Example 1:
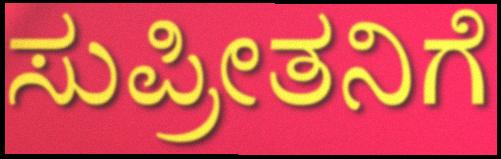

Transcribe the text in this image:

ಸುಪ್ರೀತನಿಗೆ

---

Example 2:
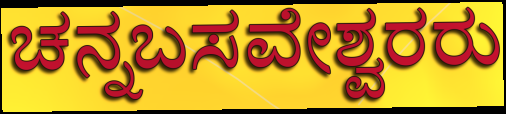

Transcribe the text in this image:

ಚನ್ನಬಸವೇಶ್ವರರು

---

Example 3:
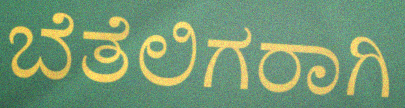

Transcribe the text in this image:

ಬೆತೆಲಿಗರಾಗಿ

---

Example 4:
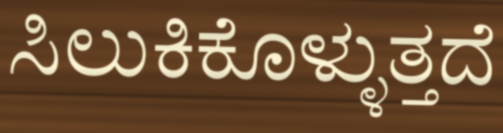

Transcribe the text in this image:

ಸಿಲುಕಿಕೊಳ್ಳುತ್ತದೆ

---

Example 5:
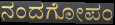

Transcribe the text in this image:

ನಂದಗೋಪಂ